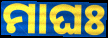
ମାଘଃ